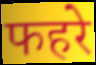
फहरे